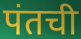
पंतची